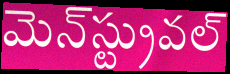
మెన్‌స్ట్రువల్